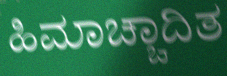
ಹಿಮಾಚ್ಚಾದಿತ